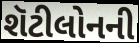
શૅટીલોનની